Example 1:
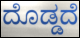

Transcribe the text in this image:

ದೊಡ್ಡದೆ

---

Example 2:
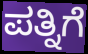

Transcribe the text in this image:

ಪತ್ನಿಗೆ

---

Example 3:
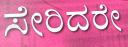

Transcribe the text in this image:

ಸೇರಿದರೇ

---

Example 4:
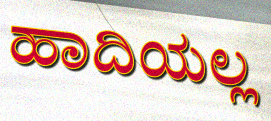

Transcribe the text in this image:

ಹಾದಿಯಲ್ಲ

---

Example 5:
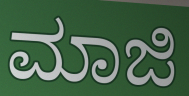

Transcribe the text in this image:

ಮಾಜಿ